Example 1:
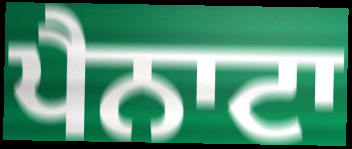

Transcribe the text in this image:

ਪੈਨਾਟਾ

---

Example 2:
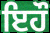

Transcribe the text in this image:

ਇਹੌ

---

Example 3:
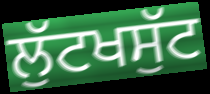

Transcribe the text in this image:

ਲੁੱਟਖਸੁੱਟ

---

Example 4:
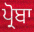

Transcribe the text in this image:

ਪ੍ਰੋਬਾ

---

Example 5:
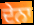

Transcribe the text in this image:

ਦੇਨਾ